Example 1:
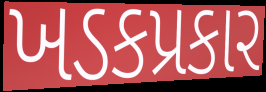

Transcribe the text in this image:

ખડકપ્રકાર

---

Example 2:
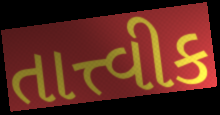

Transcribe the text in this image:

તાત્ત્વીક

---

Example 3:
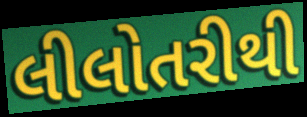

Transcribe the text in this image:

લીલોતરીથી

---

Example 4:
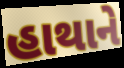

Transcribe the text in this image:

હાથાને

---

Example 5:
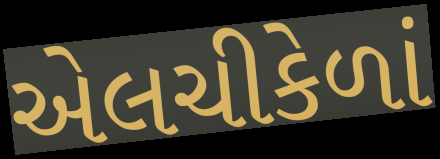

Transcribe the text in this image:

એલચીકેળાં